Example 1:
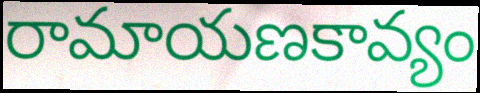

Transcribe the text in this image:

రామాయణకావ్యం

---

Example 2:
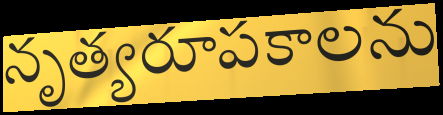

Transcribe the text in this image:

నృత్యరూపకాలను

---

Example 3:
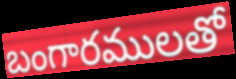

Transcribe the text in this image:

బంగారములతో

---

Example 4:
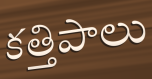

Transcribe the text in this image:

కత్తిపాలు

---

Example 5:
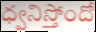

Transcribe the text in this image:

ధ్వనిస్తోందో